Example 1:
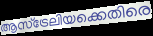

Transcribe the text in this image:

ആസ്ട്രേലിയക്കെതിരെ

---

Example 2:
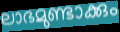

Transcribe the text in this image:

ലാഭമുണ്ടാക്കും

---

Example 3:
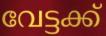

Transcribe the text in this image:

വേട്ടക്ക്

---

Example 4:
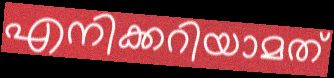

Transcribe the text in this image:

എനിക്കറിയാമത്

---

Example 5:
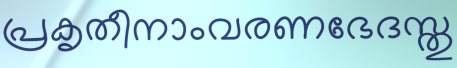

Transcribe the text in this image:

പ്രകൃതീനാംവരണഭേദസ്തു